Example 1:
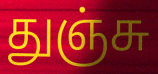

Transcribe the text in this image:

துஞ்சு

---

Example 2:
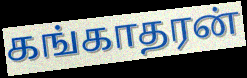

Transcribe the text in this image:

கங்காதரன்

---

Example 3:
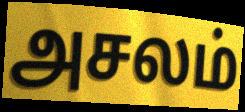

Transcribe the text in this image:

அசலம்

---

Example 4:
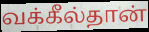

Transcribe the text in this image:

வக்கீல்தான்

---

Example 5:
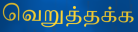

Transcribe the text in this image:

வெறுத்தக்க